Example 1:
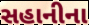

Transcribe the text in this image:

સહાનીના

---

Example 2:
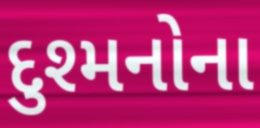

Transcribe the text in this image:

દુશ્મનોના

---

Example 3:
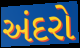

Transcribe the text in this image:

અંદરો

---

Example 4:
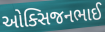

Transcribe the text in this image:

ઓક્સિજનભાઈ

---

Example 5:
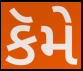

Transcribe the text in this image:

કૅમે